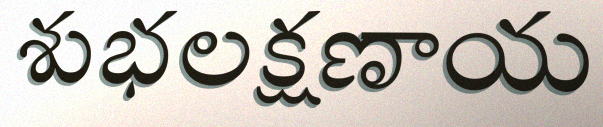
శుభలక్షణాయ